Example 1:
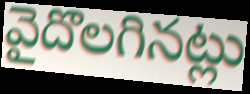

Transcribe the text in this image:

వైదొలగినట్లు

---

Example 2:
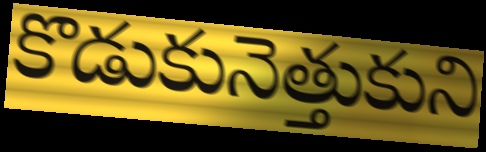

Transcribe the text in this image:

కొడుకునెత్తుకుని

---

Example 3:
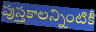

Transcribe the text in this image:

పుస్తకాలన్నింటికీ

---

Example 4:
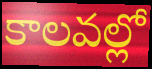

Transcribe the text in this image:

కాలవల్లో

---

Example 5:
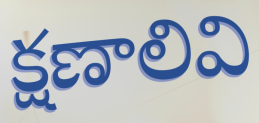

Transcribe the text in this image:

క్షణాలివి